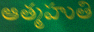
ఆత్మహుతి